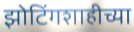
झोटिंगशाहीच्या